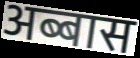
अब्बास